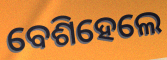
ବେଶିହେଲେ